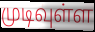
முடிவுள்ள